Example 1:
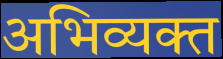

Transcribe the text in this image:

अभिव्यक्त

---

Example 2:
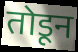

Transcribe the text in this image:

तोडून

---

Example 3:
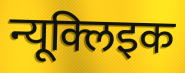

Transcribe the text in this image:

न्यूक्‍लिइक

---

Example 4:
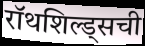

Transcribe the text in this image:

रॉथशिल्ड्सची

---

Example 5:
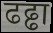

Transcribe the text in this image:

ढढ्ढा